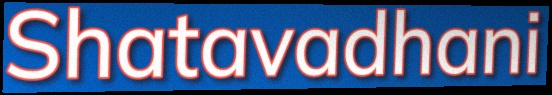
Shatavadhani